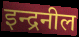
इन्द्रनील